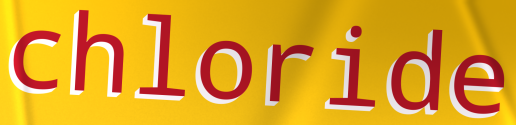
chloride